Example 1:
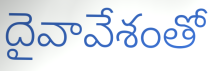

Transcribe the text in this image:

దైవావేశంతో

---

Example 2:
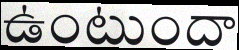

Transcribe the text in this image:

ఉంటుందా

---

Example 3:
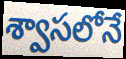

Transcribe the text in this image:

శ్వాసలోనే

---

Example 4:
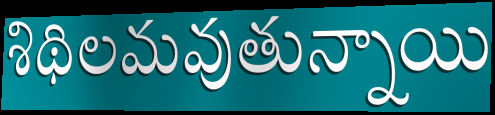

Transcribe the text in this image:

శిథిలమవుతున్నాయి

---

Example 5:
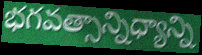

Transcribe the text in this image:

భగవత్సాన్నిధ్యాన్ని